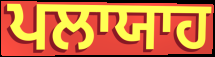
ਪਲਾਯਾਹ